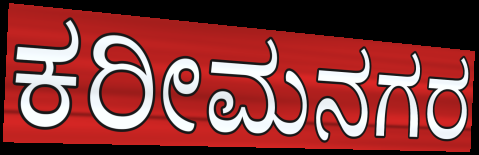
ಕರೀಮನಗರ